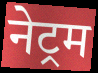
नेट्रम